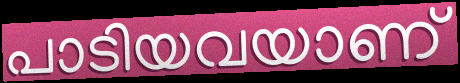
പാടിയവയാണ്